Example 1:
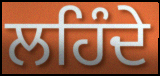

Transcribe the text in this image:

ਲਹਿੰਦੇ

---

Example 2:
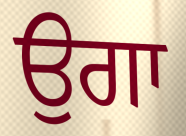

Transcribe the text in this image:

ਉਗਾ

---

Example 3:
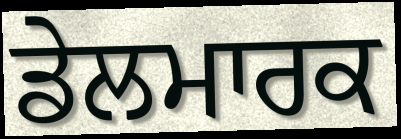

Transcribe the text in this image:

ਡੇਲਮਾਰਕ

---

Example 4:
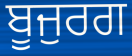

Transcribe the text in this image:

ਬੂਜੁਰਗ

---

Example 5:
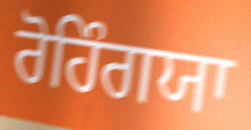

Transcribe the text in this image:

ਰੋਹਿੰਗਯਾ